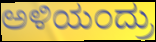
ಅಳಿಯಂದ್ರು